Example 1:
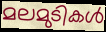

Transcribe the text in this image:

മലമുടികൾ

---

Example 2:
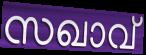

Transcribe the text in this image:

സഖാവ്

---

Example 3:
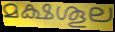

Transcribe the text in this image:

മക്ഷശൂല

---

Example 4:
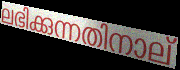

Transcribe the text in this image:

ലഭിക്കുന്നതിനാല്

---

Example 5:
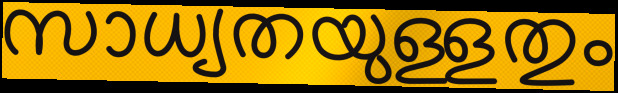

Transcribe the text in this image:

സാധ്യതയുള്ളതും